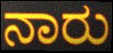
ನಾರು